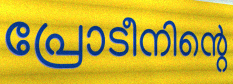
പ്രോടീനിന്റെ